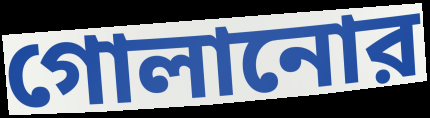
গোলানোর